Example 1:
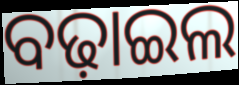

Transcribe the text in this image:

ବଢ଼ାଇଲ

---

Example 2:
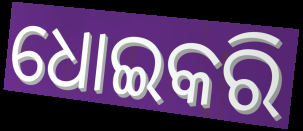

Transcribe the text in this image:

ଧୋଇକରି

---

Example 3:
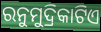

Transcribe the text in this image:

ରନୁମୁଦ୍ରିକାଟିଏ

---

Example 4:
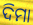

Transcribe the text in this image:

ଦିମା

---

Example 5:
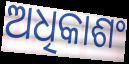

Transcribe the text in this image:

ଅଧିକାଶଂ